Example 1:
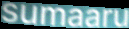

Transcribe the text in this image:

sumaaru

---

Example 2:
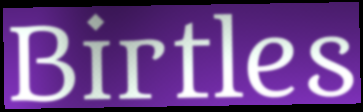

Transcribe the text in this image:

Birtles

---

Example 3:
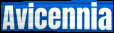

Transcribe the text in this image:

Avicennia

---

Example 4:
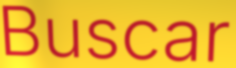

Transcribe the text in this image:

Buscar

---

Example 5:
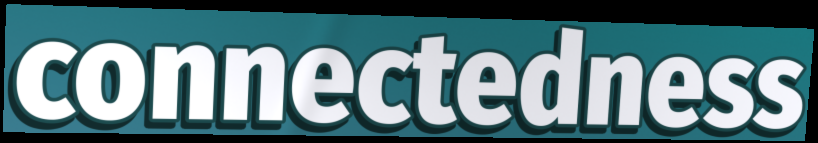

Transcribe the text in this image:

connectedness